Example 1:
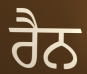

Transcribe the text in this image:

ਰੈਨ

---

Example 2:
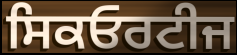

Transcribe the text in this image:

ਸਿਕਓਰਟੀਜ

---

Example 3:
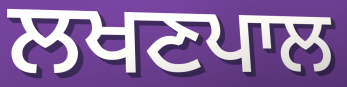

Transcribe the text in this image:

ਲਖਣਪਾਲ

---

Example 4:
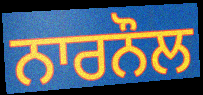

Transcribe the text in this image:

ਨਾਰਨੌਲ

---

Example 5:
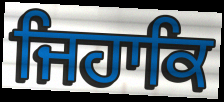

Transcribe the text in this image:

ਜਿਹਾਕਿ